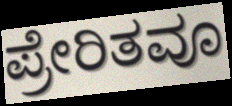
ಪ್ರೇರಿತವೂ